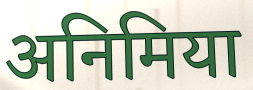
अनिमिया